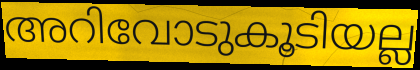
അറിവോടുകൂടിയല്ല